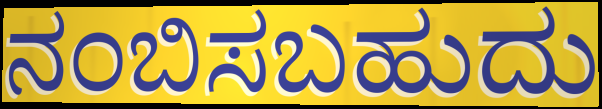
ನಂಬಿಸಬಹುದು